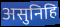
असुनिहि